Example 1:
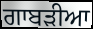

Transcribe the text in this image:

ਗਾਬੜੀਆ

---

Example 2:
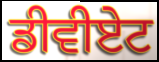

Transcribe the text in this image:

ਡੀਵੀਏਟ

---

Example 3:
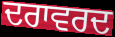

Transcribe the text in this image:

ਦਰਾਵਰਦ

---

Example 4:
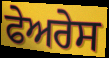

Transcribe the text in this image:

ਫੇਅਰੇਸ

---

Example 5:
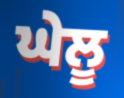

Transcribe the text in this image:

ਘੇਲੂ